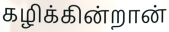
கழிக்கின்றான்